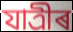
যাত্ৰীৰ